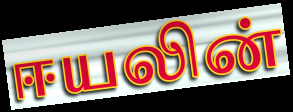
ஈயலின்